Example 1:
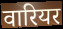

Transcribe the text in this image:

वारियर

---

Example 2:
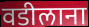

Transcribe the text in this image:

वडीलाना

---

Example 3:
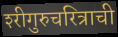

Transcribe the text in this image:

श्रीगुरुचरित्राची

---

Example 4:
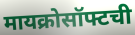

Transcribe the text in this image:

मायक्रोसॉफ्टची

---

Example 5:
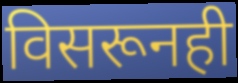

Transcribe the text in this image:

विसरूनही